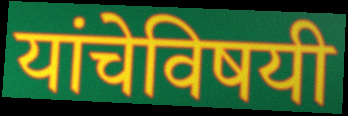
यांचेविषयी